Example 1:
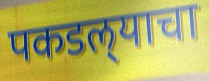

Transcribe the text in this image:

पकडल्याचा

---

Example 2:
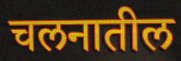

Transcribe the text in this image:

चलनातील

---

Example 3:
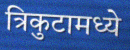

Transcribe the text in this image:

त्रिकुटामध्ये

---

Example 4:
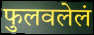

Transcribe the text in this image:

फुलवलेलं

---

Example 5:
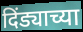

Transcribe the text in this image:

दिंड्याच्या